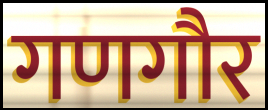
गणगौर